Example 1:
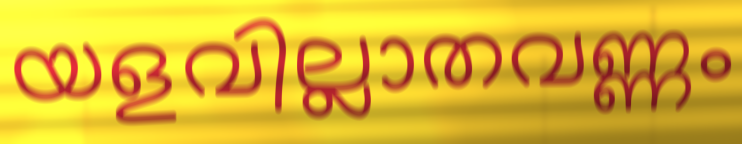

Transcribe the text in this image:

യളവില്ലാതവണ്ണം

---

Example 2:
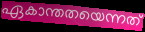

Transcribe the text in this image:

ഏകാന്തതയെന്നത്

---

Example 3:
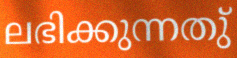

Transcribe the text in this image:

ലഭിക്കുന്നതു്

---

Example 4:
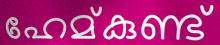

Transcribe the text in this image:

ഹേമ്കുണ്ട്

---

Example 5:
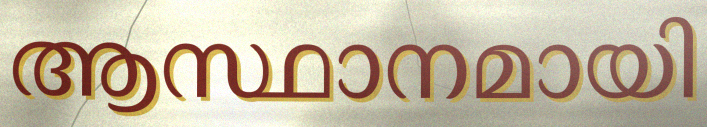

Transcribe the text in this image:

ആസ്ഥാനമായി